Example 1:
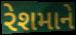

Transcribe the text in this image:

રેશમાને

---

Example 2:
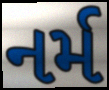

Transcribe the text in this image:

નર્મ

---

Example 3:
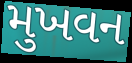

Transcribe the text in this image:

મુખવન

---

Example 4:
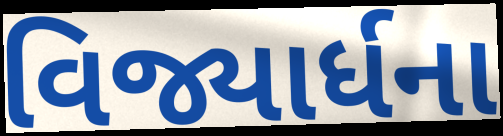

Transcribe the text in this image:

વિજ્યાર્ધના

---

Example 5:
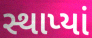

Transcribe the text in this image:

સ્થાપ્યાં